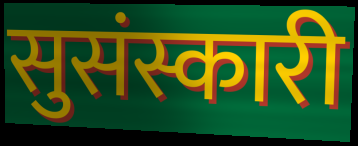
सुसंस्कारी